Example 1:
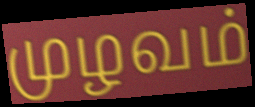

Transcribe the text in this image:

முழவம்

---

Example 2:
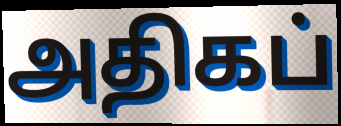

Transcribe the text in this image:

அதிகப்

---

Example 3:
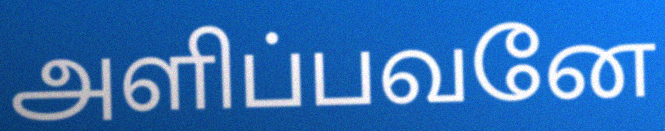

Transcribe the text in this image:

அளிப்பவனே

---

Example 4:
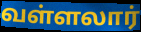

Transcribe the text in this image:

வள்ளலார்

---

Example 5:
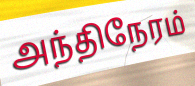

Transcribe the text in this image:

அந்திநேரம்